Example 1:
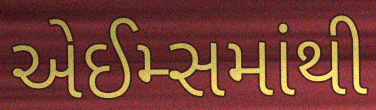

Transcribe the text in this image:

એઈમ્સમાંથી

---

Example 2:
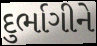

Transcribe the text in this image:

દુર્ભાગીને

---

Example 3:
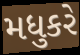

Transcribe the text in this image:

મધુકરે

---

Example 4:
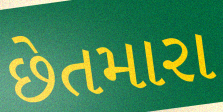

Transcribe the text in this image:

છેતમારા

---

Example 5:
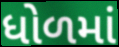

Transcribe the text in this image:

ધોળમાં